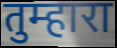
तुम्हारा